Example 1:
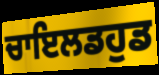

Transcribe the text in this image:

ਚਾਇਲਡਹੁਡ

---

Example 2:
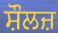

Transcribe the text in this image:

ਸ਼ੌਲਜ਼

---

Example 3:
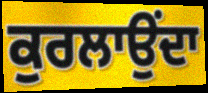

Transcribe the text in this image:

ਕੁਰਲਾਉਂਦਾ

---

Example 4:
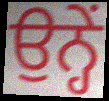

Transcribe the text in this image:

ਉਨ੍ਹੇਂ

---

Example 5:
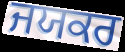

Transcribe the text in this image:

ਜਯਕਰ